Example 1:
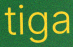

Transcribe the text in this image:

tiga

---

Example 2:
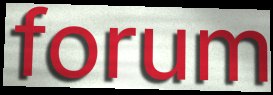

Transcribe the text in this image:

forum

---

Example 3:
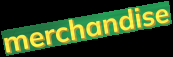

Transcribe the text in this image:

merchandise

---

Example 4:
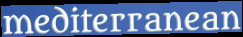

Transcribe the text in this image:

mediterranean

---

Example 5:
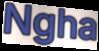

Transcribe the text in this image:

Ngha